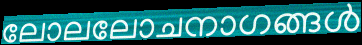
ലോലലോചനാഗങ്ങൾ